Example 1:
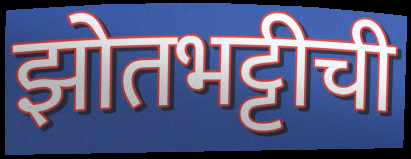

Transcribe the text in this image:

झोतभट्टीची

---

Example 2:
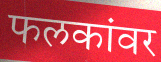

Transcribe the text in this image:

फलकांवर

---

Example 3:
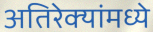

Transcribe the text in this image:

अतिरेक्यांमध्ये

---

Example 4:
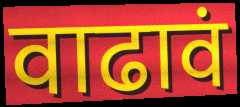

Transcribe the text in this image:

वाढावं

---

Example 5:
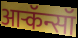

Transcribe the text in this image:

आर्‍कॅन्सॉ